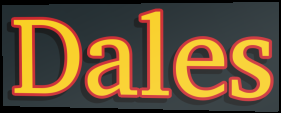
Dales